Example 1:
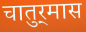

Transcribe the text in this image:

चातुर्मास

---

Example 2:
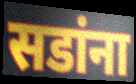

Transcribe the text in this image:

सडांना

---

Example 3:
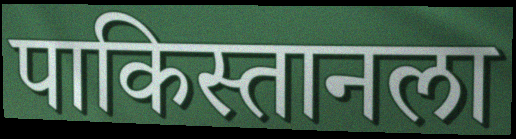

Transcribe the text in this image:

पाकिस्तानला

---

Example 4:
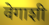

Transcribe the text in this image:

वेगाशी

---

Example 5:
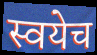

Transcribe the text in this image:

स्वयेच